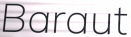
Baraut